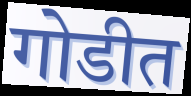
गोडीत